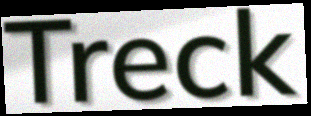
Treck